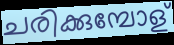
ചരിക്കുമ്പോള്